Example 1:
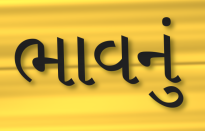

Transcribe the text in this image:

ભાવનું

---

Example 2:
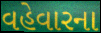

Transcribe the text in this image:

વહેવારના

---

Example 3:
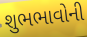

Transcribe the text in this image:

શુભભાવોની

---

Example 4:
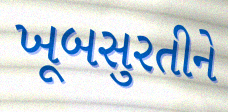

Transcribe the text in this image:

ખૂબસુરતીને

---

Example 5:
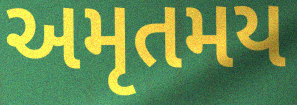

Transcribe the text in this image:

અમૃતમય